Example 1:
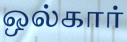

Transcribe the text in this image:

ஒல்கார்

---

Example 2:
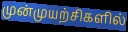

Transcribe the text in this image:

முன்முயற்சிகளில்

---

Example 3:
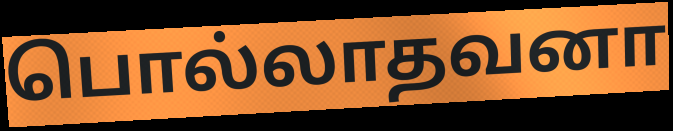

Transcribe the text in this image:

பொல்லாதவனா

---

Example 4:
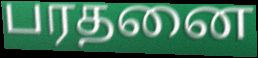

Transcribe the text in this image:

பரதனை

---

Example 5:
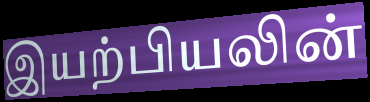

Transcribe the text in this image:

இயற்பியலின்